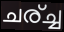
ചര്ച്ച